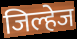
जिल्हेज